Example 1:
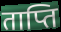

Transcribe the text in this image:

ताप्ति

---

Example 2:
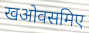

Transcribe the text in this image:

खओवसमिए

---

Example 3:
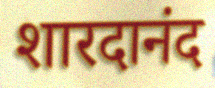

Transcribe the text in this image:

शारदानंद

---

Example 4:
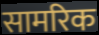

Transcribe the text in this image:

सामरिक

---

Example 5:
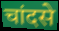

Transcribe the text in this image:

चांदसे